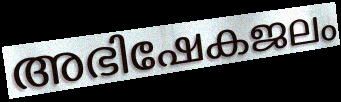
അഭിഷേകജലം